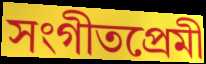
সংগীতপ্রেমী